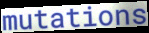
mutations